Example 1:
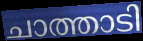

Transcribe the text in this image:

ചാത്താടി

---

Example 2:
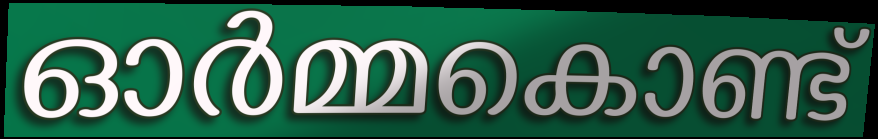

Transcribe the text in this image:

ഓർമ്മകൊണ്ട്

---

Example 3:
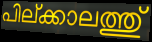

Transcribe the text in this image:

പില്ക്കാലത്തു്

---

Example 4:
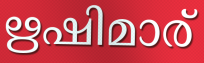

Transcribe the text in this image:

ഋഷിമാര്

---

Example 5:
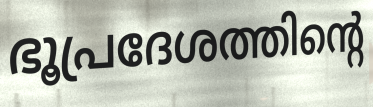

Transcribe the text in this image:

ഭൂപ്രദേശത്തിന്റെ